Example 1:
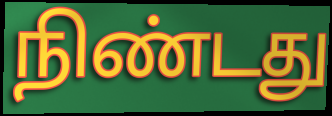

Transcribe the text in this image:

நிண்டது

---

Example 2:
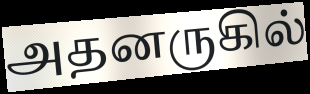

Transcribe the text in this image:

அதனருகில்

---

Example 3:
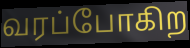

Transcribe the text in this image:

வரப்போகிற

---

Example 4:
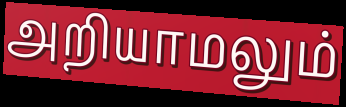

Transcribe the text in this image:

அறியாமலும்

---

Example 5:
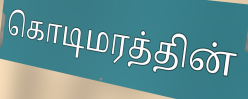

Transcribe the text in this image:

கொடிமரத்தின்